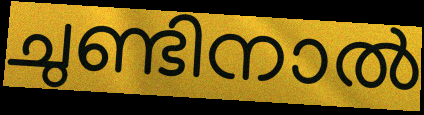
ചുണ്ടിനാൽ